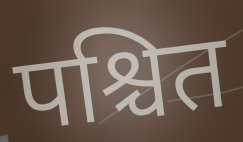
पश्चित